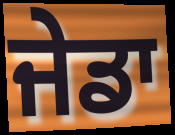
ਜੇਡਾ